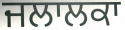
ਜਲਾਲਕਾ